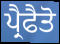
ਪ੍ਰੈਫੈਤੋ